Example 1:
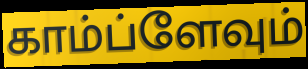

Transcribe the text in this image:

காம்ப்ளேவும்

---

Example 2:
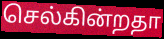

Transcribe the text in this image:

செல்கின்றதா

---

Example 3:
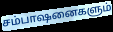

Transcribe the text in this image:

சம்பாஷனைகளும்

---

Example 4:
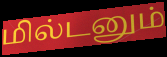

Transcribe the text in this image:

மில்டனும்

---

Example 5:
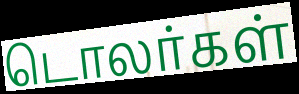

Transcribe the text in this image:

டொலர்கள்